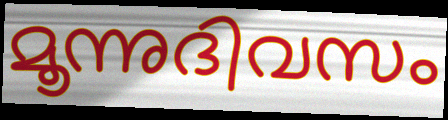
മൂന്നുദിവസം